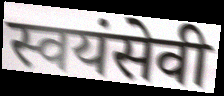
स्वयंसेवी